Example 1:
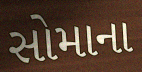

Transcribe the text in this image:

સોમાના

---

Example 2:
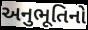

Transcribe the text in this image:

અનુભૂતિનો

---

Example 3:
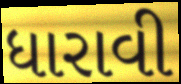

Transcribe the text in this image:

ધારાવી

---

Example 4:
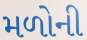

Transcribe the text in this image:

મળોની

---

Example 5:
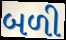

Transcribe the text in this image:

બળી